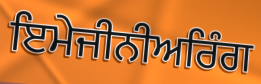
ਇਮੇਜੀਨੀਅਰਿੰਗ